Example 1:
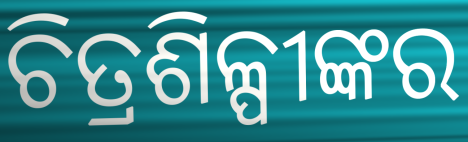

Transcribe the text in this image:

ଚିତ୍ରଶିଳ୍ପୀଙ୍କର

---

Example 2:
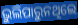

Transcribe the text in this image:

ଭୁଲିପାରୁନଥିଲେ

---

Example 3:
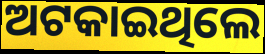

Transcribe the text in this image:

ଅଟକାଇଥିଲେ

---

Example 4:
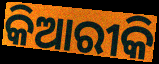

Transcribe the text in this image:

କିଆରୀକି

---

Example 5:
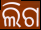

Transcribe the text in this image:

ଲିଗ